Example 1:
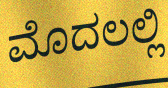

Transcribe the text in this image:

ಮೊದಲಲ್ಲಿ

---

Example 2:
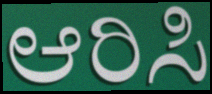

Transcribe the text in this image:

ಆರಿಸಿ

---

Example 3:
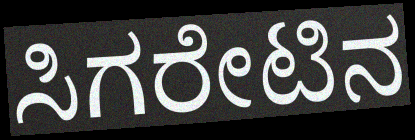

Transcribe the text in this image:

ಸಿಗರೇಟಿನ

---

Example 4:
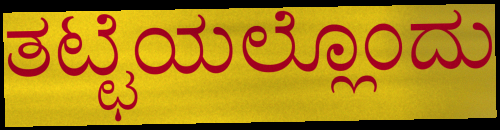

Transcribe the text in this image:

ತಟ್ಟೆಯಲ್ಲೊಂದು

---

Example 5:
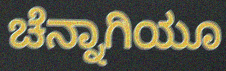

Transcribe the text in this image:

ಚೆನ್ನಾಗಿಯೂ